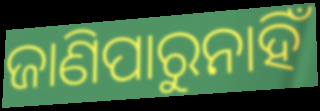
ଜାଣିପାରୁନାହିଁ